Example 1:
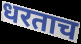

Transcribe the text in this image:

धरताच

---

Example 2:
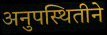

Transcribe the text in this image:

अनुपस्थितीने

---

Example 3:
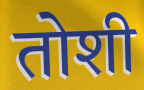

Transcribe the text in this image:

तोशी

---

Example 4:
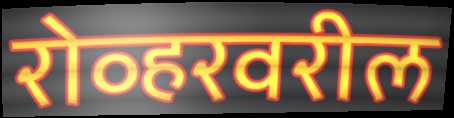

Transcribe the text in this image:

रोव्हरवरील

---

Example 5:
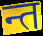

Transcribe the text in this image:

न्त